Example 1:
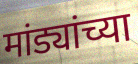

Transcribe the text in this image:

मांड्यांच्या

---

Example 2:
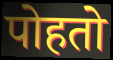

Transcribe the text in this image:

पोहतो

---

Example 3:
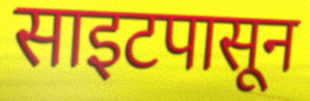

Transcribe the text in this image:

साइटपासून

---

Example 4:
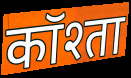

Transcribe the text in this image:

कॉश्ता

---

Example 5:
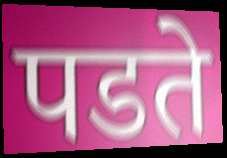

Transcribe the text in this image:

पडते